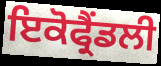
ਇਕੋਫ੍ਰੈਂਡਲੀ